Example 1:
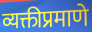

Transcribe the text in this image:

व्यक्तीप्रमाणे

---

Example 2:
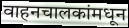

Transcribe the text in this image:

वाहनचालकांमधून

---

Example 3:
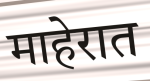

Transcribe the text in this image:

माहेरात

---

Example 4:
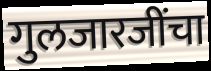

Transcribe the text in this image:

गुलजारजींचा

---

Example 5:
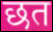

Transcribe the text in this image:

छत